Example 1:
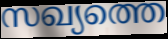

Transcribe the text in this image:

സഖ്യത്തെ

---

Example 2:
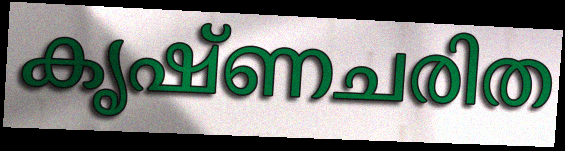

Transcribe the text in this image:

കൃഷ്ണചരിത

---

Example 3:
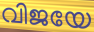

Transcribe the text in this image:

വിജയേ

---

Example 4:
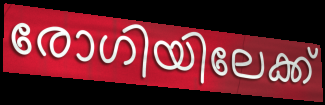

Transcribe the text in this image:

രോഗിയിലേക്ക്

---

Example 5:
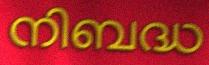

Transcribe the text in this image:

നിബദ്ധ